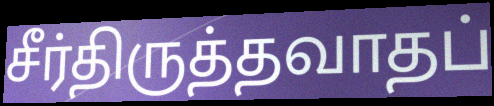
சீர்திருத்தவாதப்